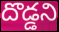
దొడ్డని